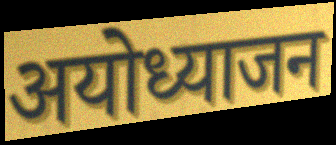
अयोध्याजन